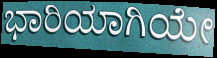
ಭಾರಿಯಾಗಿಯೇ